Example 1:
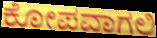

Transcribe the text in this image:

ಕೋಪವಾಗಲಿ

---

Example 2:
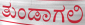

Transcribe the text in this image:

ತುಂಡಾಗಲಿ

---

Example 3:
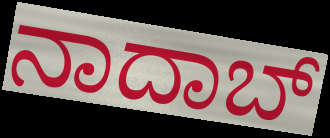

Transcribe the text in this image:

ನಾದಾಬ್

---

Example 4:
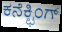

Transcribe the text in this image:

ಕನೆಕ್ಟಿಂಗ್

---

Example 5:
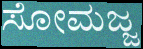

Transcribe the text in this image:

ಸೋಮಜ್ಜ